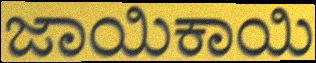
ಜಾಯಿಕಾಯಿ